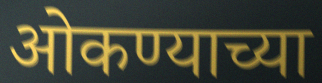
ओकण्याच्या